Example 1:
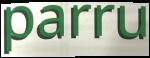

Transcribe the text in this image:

parru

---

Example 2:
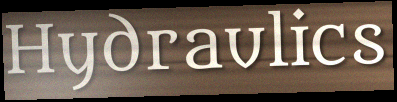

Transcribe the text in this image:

Hydraulics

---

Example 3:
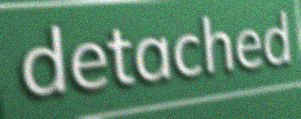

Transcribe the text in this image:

detached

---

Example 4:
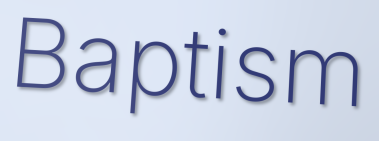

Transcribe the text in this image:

Baptism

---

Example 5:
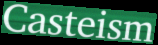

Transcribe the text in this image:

Casteism